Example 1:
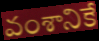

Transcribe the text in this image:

వంశానికే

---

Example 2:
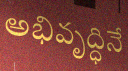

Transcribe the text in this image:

అభివృద్ధినే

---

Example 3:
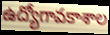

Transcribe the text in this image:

ఉద్యోగావకాశాల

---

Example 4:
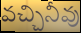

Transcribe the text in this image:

వచ్చినీవు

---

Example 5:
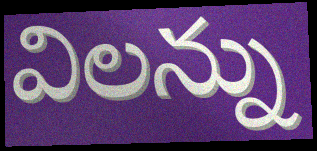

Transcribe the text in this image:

విలన్ను